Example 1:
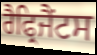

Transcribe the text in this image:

ਰੈਫ੍ਰਿਜੈਂਟਸ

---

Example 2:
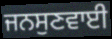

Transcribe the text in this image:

ਜਨਸੁਣਵਾਈ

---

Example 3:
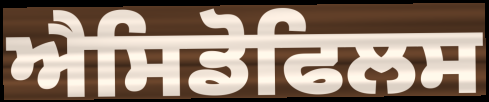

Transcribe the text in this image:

ਐਸਿਡੋਫਿਲਸ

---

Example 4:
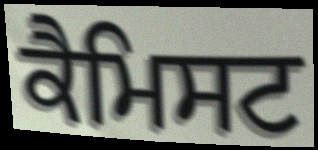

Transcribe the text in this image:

ਕੈਮਿਸਟ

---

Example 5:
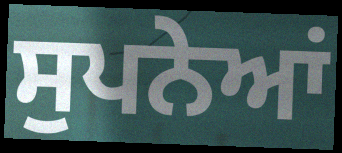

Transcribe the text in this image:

ਸੁਪਨੇਆਂ